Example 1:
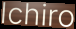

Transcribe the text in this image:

Ichiro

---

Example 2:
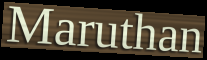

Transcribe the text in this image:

Maruthan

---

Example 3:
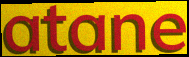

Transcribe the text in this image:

atane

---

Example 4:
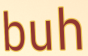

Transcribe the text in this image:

buh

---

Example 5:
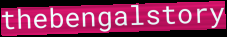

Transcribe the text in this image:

thebengalstory